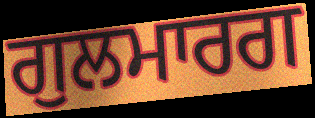
ਗੁਲਮਾਰਗ